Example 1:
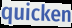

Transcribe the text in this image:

quicken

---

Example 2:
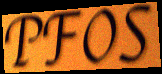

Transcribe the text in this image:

PFOS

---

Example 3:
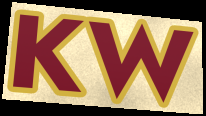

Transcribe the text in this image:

KW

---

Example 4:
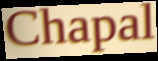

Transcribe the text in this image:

Chapal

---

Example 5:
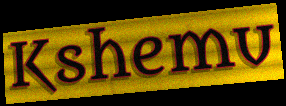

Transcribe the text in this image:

Kshemu